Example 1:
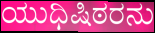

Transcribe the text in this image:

ಯುಧಿಷಿಠರನು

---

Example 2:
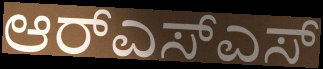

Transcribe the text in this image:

ಆರ್‌ಎಸ್ಎಸ್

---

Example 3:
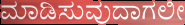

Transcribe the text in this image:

ಮಾಡಿಸುವುದಾಗಲೀ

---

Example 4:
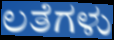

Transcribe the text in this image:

ಲತೆಗಳು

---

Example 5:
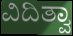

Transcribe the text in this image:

ವಿದಿತ್ವಾ